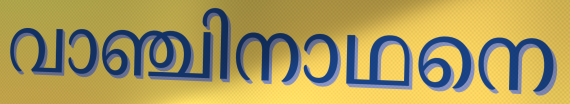
വാഞ്ചിനാഥനെ